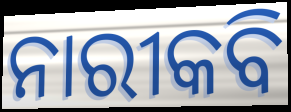
ନାରୀକବି